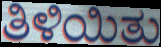
ತಿಳಿಯಿತು